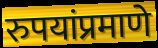
रुपयांप्रमाणे